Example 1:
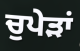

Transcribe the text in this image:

ਚੁਪੇੜਾਂ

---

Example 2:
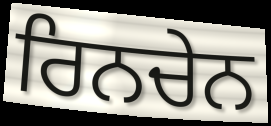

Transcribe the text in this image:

ਰਿਨਚੇਨ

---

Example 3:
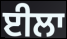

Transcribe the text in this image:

ਈਲਾ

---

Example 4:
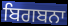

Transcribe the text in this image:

ਬਿਗਬਨਾ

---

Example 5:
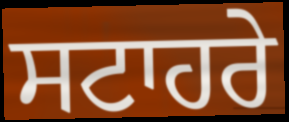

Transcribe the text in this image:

ਸਟਾਹਰੇ